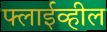
फ्लाईव्हील